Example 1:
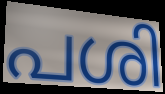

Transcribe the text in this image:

പശി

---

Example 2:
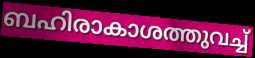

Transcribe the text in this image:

ബഹിരാകാശത്തുവച്ച്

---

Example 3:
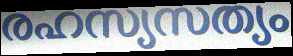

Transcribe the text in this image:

രഹസ്യസത്യം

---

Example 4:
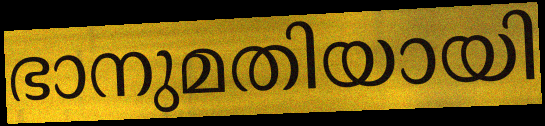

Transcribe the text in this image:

ഭാനുമതിയായി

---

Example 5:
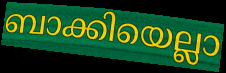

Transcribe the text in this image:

ബാക്കിയെല്ലാ